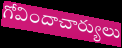
గోవిందాచార్యులు